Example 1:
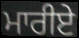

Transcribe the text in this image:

ਮਾਰੀਏ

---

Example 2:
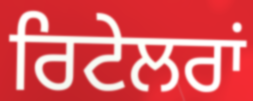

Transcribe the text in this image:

ਰਿਟੇਲਰਾਂ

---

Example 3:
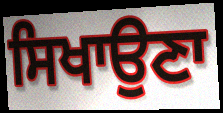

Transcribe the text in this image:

ਸਿਖਾਉਣਾ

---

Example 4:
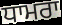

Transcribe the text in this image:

ਧਾਮਰਾ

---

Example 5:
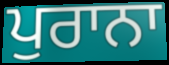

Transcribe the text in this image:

ਪੁਰਾਨਾ